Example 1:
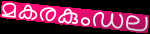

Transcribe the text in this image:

മകരകുംഡല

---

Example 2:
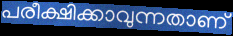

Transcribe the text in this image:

പരീക്ഷിക്കാവുന്നതാണ്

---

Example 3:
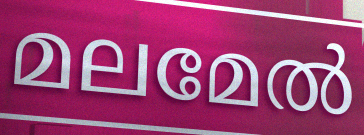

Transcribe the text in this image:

മലമേൽ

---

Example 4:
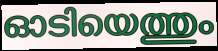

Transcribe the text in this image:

ഓടിയെത്തും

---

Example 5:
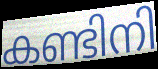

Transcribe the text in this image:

കണ്ടിനി